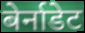
बेर्नाडेट